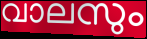
വാലസും